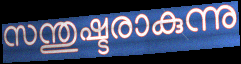
സന്തുഷ്ടരാകുന്നു